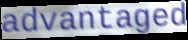
advantaged